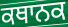
ਕਥਾਨਕ